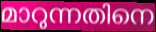
മാറുന്നതിനെ